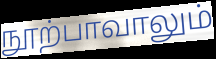
நூற்பாவாலும்